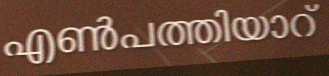
എൺപത്തിയാറ്